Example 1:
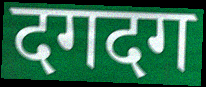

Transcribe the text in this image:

दगदग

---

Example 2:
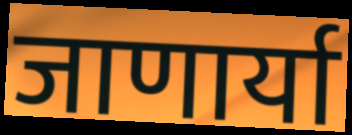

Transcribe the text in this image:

जाणार्या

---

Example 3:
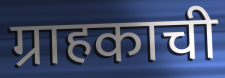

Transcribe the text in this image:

ग्राहकाची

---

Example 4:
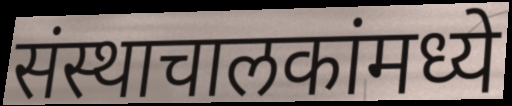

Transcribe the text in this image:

संस्थाचालकांमध्ये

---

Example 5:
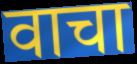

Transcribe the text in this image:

वाचा